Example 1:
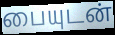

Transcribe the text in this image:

பையுடன்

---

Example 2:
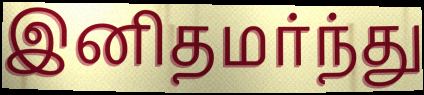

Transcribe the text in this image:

இனிதமர்ந்து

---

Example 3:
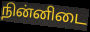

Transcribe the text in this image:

நின்னிடை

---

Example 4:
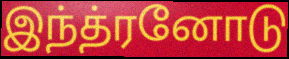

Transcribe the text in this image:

இந்த்ரனோடு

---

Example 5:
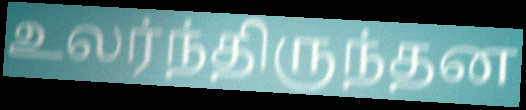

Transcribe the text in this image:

உலர்ந்திருந்தன